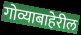
गोव्याबाहेरील